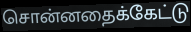
சொன்னதைக்கேட்டு